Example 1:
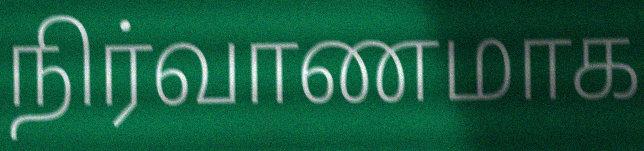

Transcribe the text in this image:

நிர்வாணமாக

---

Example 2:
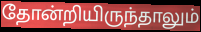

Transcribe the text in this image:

தோன்றியிருந்தாலும்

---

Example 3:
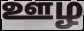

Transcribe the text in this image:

ஊழ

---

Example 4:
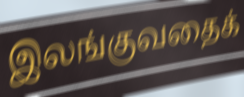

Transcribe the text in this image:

இலங்குவதைக்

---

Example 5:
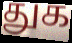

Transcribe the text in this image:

துக